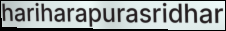
hariharapurasridhar